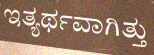
ಇತ್ಯರ್ಥವಾಗಿತ್ತು